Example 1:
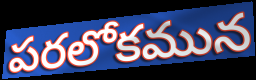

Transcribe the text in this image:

పరలోకమున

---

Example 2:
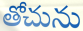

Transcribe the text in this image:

తోచును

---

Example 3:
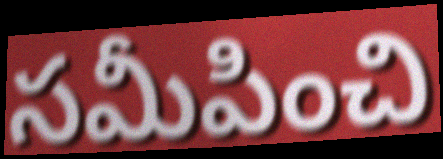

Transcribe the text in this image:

సమీపించి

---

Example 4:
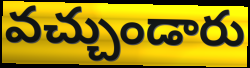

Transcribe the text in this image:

వచ్చుండారు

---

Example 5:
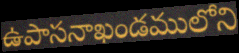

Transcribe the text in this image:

ఉపాసనాఖండములోని